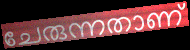
ചേരുന്നതാണ്